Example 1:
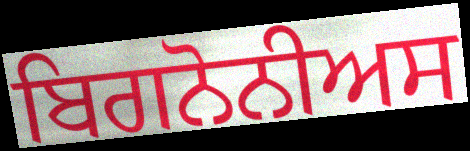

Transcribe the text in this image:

ਬਿਗਨੋਨੀਅਸ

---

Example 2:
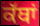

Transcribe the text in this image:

ਕੱਥਾਂ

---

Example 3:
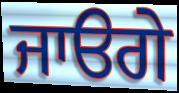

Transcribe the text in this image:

ਜਾੳਗੇ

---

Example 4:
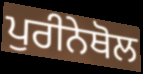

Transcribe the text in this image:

ਪੁਰੀਨੇਥੋਲ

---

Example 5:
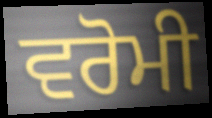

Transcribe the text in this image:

ਵਰੋਮੀ